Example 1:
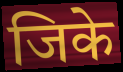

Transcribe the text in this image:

जिके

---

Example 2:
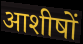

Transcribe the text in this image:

आशीषों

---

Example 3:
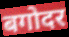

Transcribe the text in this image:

बगोदर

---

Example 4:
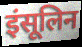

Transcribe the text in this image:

इंसूलिन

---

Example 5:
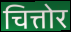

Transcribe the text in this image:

चित्तोर